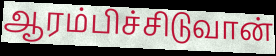
ஆரம்பிச்சிடுவான்